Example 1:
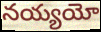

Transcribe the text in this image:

నయ్యయో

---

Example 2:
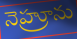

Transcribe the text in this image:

నెహ్రూను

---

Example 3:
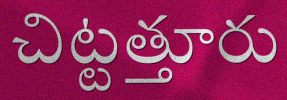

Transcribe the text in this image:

చిట్టత్తూరు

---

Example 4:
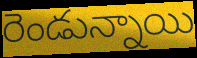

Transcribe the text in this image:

రెండున్నాయి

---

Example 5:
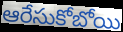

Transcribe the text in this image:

ఆరేసుకోబోయి